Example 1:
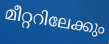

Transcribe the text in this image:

മീറ്ററിലേക്കും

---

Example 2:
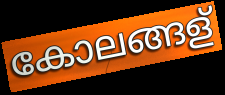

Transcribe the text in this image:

കോലങ്ങള്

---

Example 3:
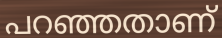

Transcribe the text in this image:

പറഞ്ഞതാണ്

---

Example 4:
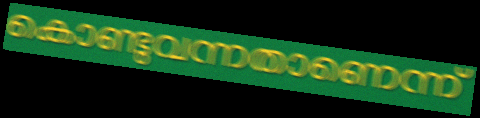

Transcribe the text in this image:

കൊണ്ടുവന്നതാണെന്ന്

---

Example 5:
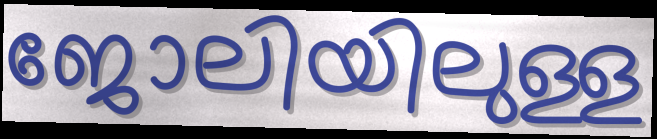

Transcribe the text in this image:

ജോലിയിലുള്ള